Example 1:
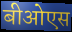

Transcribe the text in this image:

बीओएस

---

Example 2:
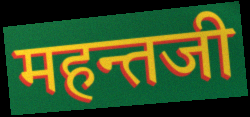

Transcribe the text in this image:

महन्तजी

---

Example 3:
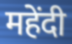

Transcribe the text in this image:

महेंदी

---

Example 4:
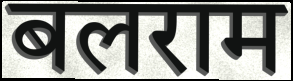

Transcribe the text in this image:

बलराम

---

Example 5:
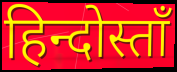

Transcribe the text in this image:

हिन्दोस्ताँ